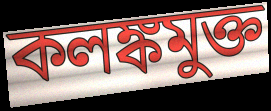
কলঙ্কমুক্ত